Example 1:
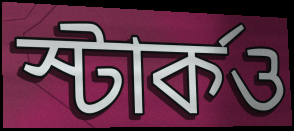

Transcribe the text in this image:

স্টার্কও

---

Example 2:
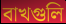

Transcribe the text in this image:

বাখগুলি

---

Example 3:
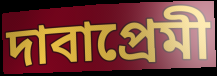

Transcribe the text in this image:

দাবাপ্রেমী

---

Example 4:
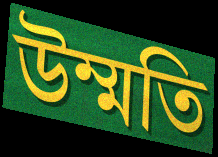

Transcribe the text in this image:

উম্মতি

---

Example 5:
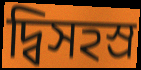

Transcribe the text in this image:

দ্বিসহস্র